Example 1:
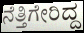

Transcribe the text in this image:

ನೆತ್ತಿಗೇರಿದ್ದ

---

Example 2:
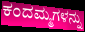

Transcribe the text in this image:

ಕಂದಮ್ಮಗಳನ್ನು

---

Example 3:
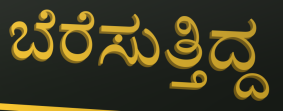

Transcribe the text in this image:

ಬೆರೆಸುತ್ತಿದ್ದ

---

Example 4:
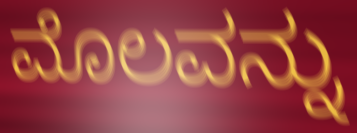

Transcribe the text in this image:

ಮೊಲವನ್ನು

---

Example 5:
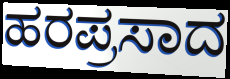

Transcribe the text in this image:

ಹರಪ್ರಸಾದ